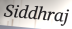
Siddhraj